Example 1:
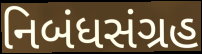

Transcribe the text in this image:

નિબંધસંગ્રહ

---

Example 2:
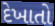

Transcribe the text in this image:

દેખાતો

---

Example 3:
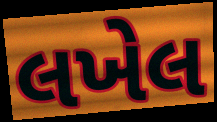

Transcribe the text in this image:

લખેલ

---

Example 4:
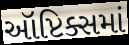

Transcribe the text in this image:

ઑપ્ટિક્સમાં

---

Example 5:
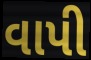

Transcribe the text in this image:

વાપી